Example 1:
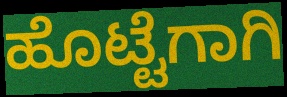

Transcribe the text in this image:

ಹೊಟ್ಟೆಗಾಗಿ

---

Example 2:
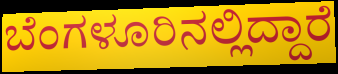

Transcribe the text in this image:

ಬೆಂಗಳೂರಿನಲ್ಲಿದ್ದಾರೆ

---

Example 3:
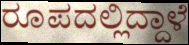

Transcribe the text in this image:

ರೂಪದಲ್ಲಿದ್ದಾಳೆ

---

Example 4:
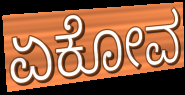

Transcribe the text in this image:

ಏಕೋವ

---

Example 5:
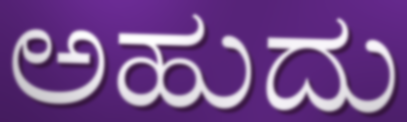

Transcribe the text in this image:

ಅಹುದು